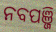
ନବପଞ୍ଜି